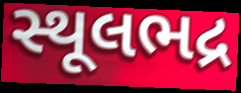
સ્થૂલભદ્ર